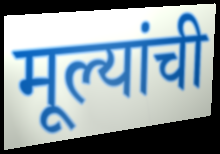
मूल्यांची